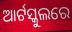
ଆର୍ଟସ୍କୁଲରେ